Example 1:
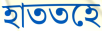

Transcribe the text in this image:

হাততহে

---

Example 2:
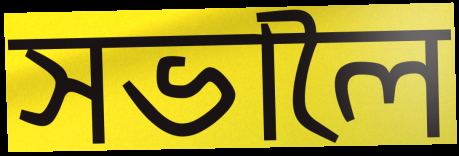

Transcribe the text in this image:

সভালৈ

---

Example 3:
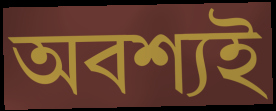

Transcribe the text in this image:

অবশ্যই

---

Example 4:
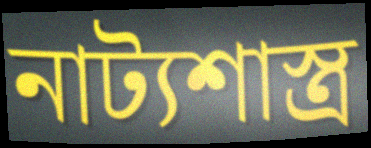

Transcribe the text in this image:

নাট্যশাস্ত্ৰ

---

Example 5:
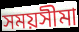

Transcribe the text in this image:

সময়সীমা